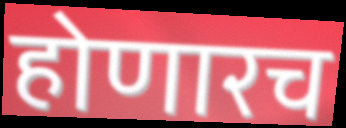
होणारच